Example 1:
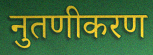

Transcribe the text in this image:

नुतणीकरण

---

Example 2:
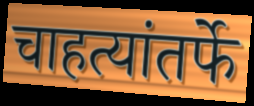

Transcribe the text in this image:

चाहत्यांतर्फे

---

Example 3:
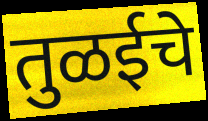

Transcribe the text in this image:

तुळईचे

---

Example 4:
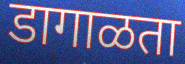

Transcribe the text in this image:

डागाळता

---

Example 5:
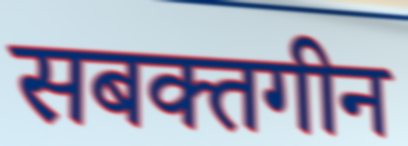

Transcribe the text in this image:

सबक्तगीन